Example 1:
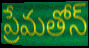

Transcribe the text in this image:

ప్రేమతోన్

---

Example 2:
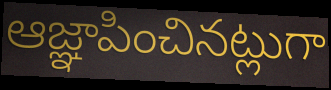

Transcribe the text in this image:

ఆజ్ఞాపించినట్లుగా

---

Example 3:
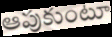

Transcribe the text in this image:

ఆపుకుంటూ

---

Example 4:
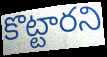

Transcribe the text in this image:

కొట్టారని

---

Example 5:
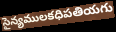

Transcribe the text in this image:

సైన్యములకధిపతియగు